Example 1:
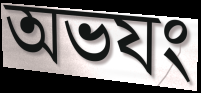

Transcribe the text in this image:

অভযং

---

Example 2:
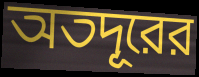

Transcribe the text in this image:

অতদূরের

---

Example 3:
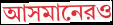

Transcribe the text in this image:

আসমানেরও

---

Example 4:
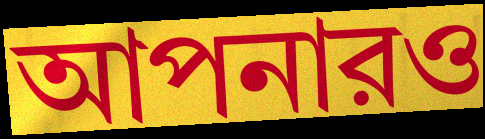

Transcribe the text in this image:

আপনারও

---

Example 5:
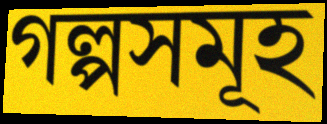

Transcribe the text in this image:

গল্পসমূহ